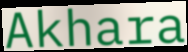
Akhara